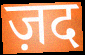
ज़द